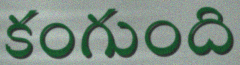
కంగుంది